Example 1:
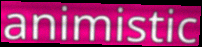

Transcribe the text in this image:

animistic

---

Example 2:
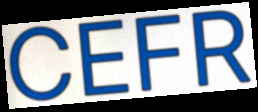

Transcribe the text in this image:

CEFR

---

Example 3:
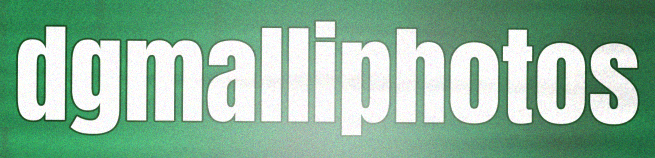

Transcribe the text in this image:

dgmalliphotos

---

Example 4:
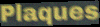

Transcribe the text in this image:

Plaques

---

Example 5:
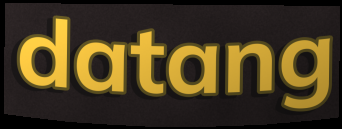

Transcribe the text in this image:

datang